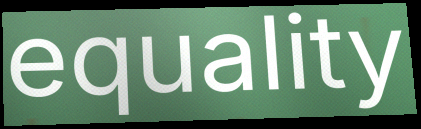
equality